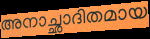
അനാച്ഛാദിതമായ